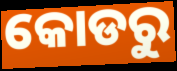
କୋଡରୁ